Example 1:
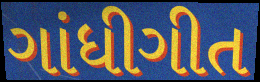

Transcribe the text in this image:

ગાંધીગીત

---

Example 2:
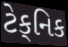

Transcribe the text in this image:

ટેક્‌નિક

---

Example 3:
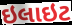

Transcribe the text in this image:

ઇલાઇટ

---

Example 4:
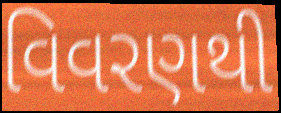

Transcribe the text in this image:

વિવરણથી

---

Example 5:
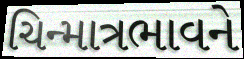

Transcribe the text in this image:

ચિન્માત્રભાવને